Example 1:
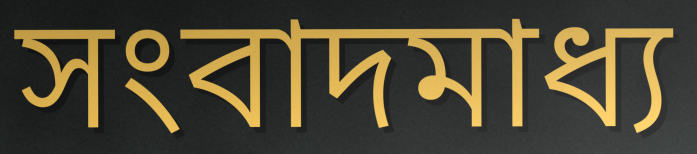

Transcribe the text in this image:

সংবাদমাধ্য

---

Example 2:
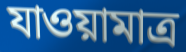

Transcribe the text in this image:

যাওয়ামাত্র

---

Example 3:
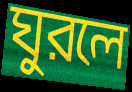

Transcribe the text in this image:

ঘুরলে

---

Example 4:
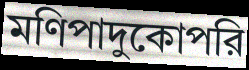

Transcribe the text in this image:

মণিপাদুকোপরি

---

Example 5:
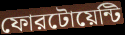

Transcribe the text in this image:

ফোরটোয়েন্টি